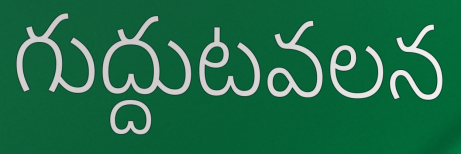
గుద్దుటవలన